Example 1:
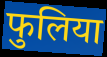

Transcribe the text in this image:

फुलिया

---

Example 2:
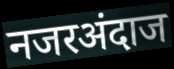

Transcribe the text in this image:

नजरअंदाज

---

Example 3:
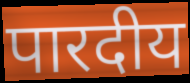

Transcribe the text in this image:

पारदीय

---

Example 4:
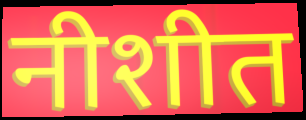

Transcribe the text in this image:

नीशीत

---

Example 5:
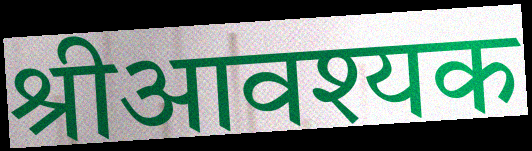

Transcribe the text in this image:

श्रीआवश्यक